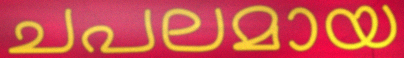
ചപലമായ